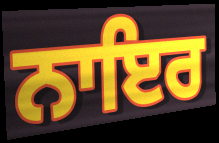
ਨਾਇਰ